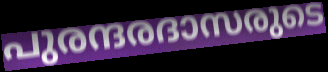
പുരന്ദരദാസരുടെ